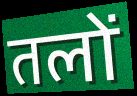
तलों